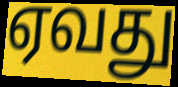
ஏவது